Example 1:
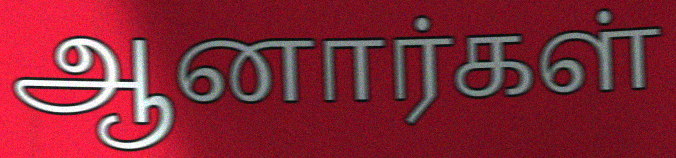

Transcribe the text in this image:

ஆனார்கள்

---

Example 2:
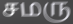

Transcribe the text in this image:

சமரு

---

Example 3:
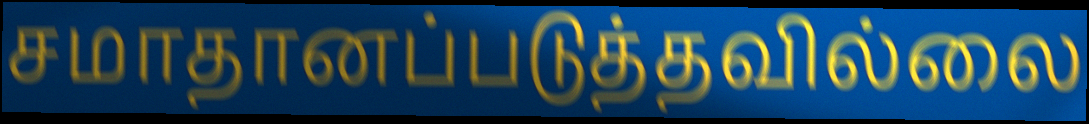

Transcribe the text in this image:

சமாதானப்படுத்தவில்லை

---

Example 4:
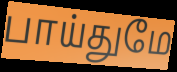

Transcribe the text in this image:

பாய்துமே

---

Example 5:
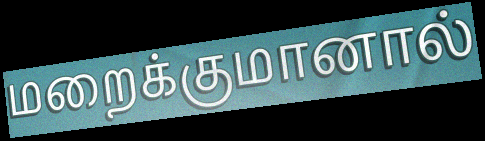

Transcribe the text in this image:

மறைக்குமானால்